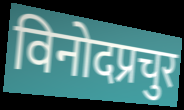
विनोदप्रचुर